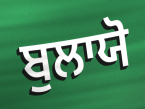
ਬੁਲਾਯੋ